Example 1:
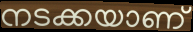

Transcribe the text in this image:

നടക്കയാണ്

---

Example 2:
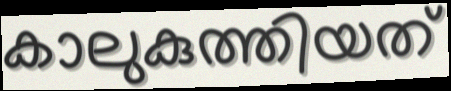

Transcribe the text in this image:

കാലുകുത്തിയത്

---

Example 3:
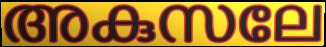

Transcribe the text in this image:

അകുസലേ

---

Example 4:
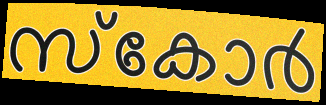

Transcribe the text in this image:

സ്കോർ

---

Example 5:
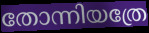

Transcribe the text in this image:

തോന്നിയത്രേ